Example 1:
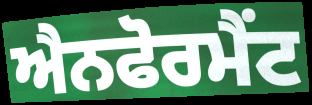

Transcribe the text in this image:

ਐਨਫੋਰਮੈਂਟ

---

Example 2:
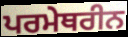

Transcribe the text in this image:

ਪਰਮੇਥਰੀਨ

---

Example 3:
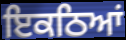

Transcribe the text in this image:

ਇਕਠਿਆਂ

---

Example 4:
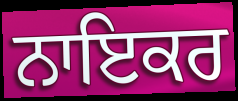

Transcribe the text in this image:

ਨਾਇਕਰ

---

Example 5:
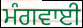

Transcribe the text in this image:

ਮੰਗਵਾਈ